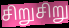
சிறுசிறு